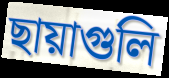
ছায়াগুলি